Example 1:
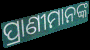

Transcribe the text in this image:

ପ୍ରାଣୀମାନଙ୍କ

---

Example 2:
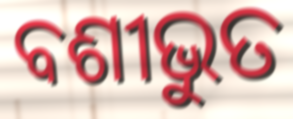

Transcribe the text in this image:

ବଶୀଭୁତ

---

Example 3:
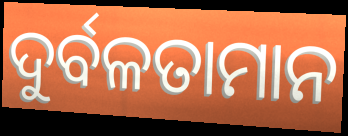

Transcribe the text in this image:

ଦୁର୍ବଳତାମାନ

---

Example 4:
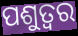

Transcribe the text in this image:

ପଶୁତ୍ୱର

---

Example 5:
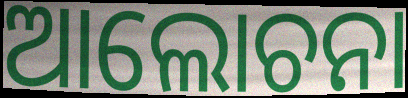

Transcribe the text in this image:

ଆଲୋଚନା